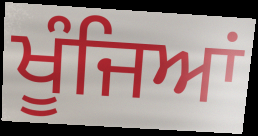
ਖੂੰਜਿਆਂ